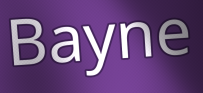
Bayne